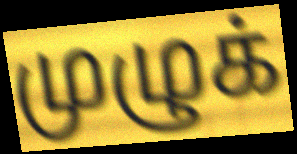
முழுக்